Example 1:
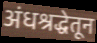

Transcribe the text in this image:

अंधश्रद्धेतून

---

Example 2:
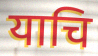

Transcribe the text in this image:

याचि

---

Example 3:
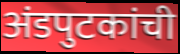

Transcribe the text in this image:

अंडपुटकांची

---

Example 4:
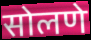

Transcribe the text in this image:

सोलणे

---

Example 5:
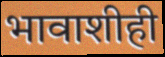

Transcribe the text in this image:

भावाशीही